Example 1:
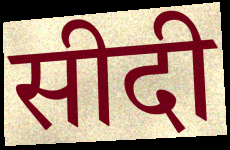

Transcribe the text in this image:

सीदी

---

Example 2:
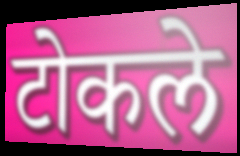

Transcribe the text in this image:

टोकले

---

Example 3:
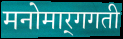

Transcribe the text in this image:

मनोमार्गगती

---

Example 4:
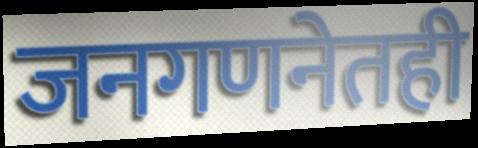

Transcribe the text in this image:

जनगणनेतही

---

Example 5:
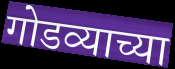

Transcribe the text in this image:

गोडव्याच्या